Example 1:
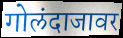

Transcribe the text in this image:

गोलंदाजावर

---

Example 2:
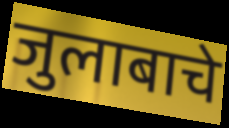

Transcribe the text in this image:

जुलाबाचे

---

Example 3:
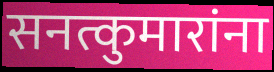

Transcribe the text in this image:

सनत्कुमारांना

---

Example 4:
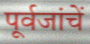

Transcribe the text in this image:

पूर्वजांचें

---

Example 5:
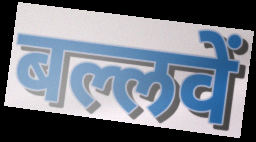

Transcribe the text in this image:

बल्लवें